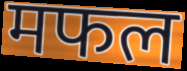
मफल